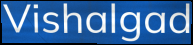
Vishalgad